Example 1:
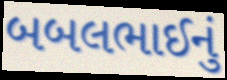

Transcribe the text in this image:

બબલભાઈનું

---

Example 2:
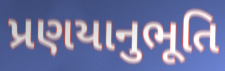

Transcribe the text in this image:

પ્રણયાનુભૂતિ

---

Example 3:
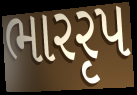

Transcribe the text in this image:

ભારરૃપ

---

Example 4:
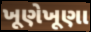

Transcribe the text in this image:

ખૂણેખૂણા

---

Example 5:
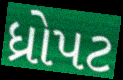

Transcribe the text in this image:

ધ્રોપટ